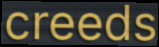
creeds